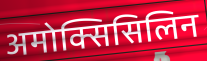
अमोक्सिसिलिन